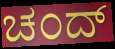
ಚಂದ್